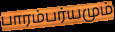
பாரம்பர்யமும்